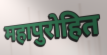
महापुरोहित